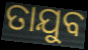
ତାଯୁବ